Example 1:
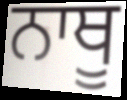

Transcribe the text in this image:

ਨਾਥੂ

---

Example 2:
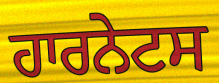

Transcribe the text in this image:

ਹਾਰਨੇਟਸ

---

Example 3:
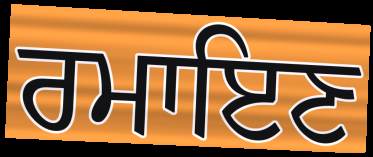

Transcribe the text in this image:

ਰਮਾਇਣ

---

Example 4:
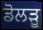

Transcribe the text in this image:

ਡੋਲੜੂ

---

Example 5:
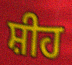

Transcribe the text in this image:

ਸ਼ੀਹ